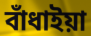
বাঁধাইয়া